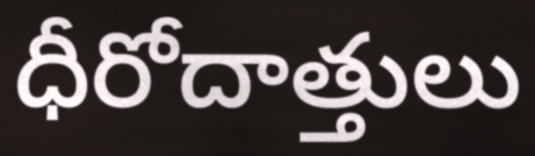
ధీరోదాత్తులు